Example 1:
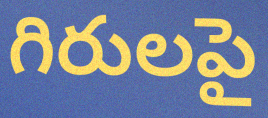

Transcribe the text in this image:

గిరులపై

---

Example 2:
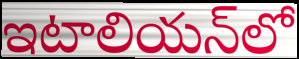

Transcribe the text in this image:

ఇటాలియన్‌లో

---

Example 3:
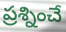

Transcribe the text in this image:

ప్రశ్నించే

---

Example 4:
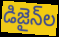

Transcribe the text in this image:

డిజైన్‌ల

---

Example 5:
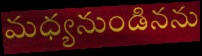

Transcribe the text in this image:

మధ్యనుండినను